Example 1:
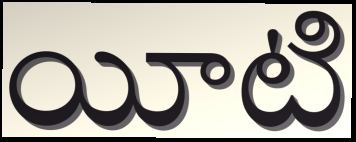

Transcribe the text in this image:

యీటి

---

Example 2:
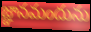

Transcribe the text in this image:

జ్ఞానమందును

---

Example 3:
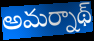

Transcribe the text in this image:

అమర్నాథ్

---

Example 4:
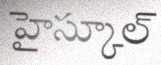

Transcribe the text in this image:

హైస్కూల్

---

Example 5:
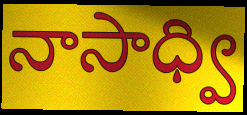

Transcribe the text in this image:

నాసాధ్వి